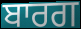
ਬਾਰਗ